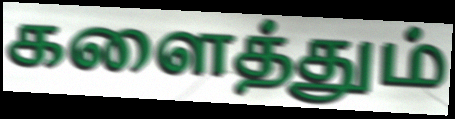
களைத்தும்